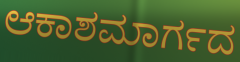
ಆಕಾಶಮಾರ್ಗದ